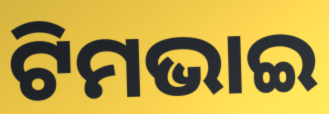
ଟିମଭାଇ